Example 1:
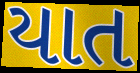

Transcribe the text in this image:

યાત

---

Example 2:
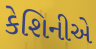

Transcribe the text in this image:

કેશિનીએ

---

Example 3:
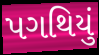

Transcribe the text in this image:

પગથિયું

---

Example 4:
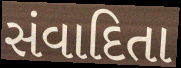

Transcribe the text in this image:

સંવાદિતા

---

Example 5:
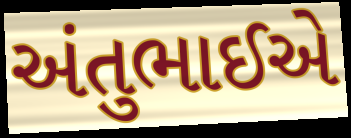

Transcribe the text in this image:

અંતુભાઈએ